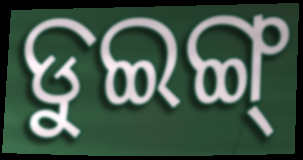
ଡୁଇଙ୍ଗ୍